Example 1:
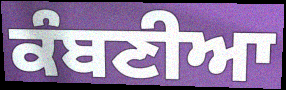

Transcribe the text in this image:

ਕੰਬਣੀਆ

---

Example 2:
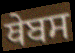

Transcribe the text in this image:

ਥੇਬਸ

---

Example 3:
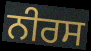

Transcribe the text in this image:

ਨੀਰਸ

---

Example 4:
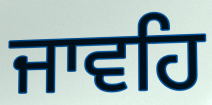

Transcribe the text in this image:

ਜਾਵਹਿ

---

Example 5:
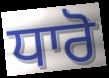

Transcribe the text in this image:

ਧਾਰੋ